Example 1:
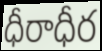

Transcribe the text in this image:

ధీరాధీర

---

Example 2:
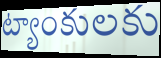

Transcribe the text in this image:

ట్యాంకులకు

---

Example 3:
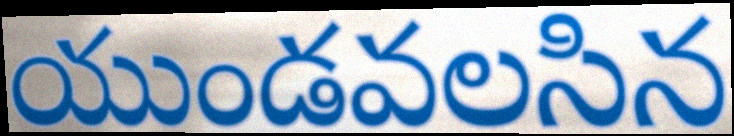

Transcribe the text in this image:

యుండవలసిన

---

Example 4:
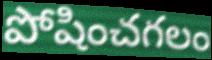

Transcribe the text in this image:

పోషించగలం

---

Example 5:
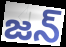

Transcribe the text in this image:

జన్